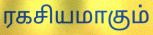
ரகசியமாகும்